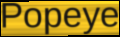
Popeye